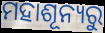
ମହାଶୂନ୍ୟରୁ